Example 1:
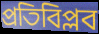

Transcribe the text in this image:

প্রতিবিপ্লব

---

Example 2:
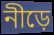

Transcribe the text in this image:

নীড়ে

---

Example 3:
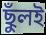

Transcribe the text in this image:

ছুঁলই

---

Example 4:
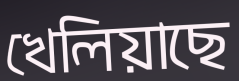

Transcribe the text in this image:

খেলিয়াছে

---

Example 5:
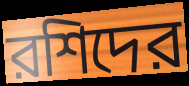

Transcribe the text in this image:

রশিদের